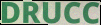
DRUCC